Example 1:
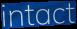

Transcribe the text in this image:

intact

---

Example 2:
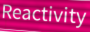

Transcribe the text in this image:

Reactivity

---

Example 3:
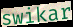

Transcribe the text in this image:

swikar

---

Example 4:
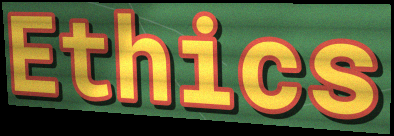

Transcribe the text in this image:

Ethics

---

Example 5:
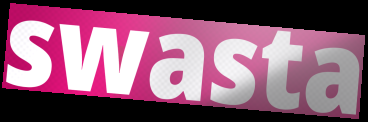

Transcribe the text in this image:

swasta